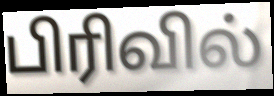
பிரிவில்